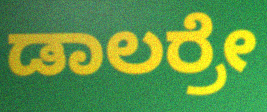
ಡಾಲರ್ರೇ